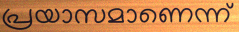
പ്രയാസമാണെന്ന്